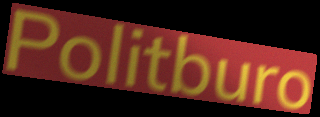
Politburo